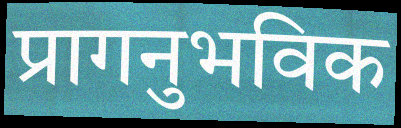
प्रागनुभविक